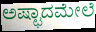
ಅಷ್ಟಾದಮೇಲೆ